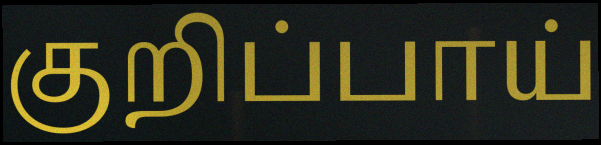
குறிப்பாய்